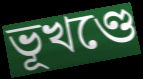
ভূখণ্ডে